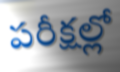
పరీక్షల్లో